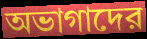
অভাগাদের